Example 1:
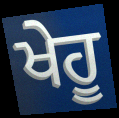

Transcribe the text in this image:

ਖੇਹੂ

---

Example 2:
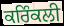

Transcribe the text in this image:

ਕਰਿੰਕਲੀ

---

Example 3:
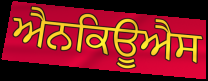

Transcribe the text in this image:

ਐਨਕਿਊਐਸ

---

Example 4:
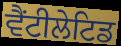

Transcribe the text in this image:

ਵੈਂਟੀਲੇਟਿਡ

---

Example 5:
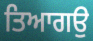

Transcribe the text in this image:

ਤਿਆਗਉ